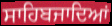
ਸਾਹਿਬਜਾਦਿਆਂ